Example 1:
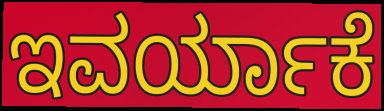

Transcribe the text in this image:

ಇವರ್ಯಾಕೆ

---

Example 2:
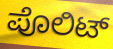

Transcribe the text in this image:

ಪೊಲಿಟ್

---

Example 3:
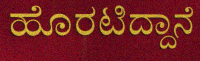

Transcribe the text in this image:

ಹೊರಟಿದ್ದಾನೆ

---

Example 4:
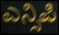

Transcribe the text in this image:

ಎನ್ಸಿಪಿ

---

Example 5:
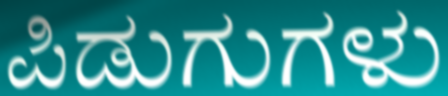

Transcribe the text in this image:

ಪಿಡುಗುಗಳು